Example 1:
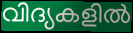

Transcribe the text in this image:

വിദ്യകളിൽ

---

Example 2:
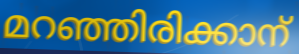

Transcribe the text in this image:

മറഞ്ഞിരിക്കാന്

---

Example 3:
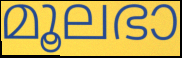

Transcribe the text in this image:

മൂലഭാ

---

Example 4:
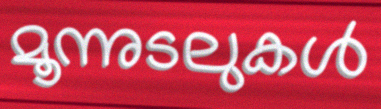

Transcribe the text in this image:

മൂന്നുടലുകൾ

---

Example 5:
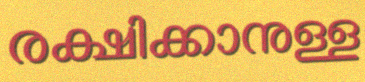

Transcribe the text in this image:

രക്ഷിക്കാനുള്ള